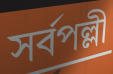
সর্বপল্লী